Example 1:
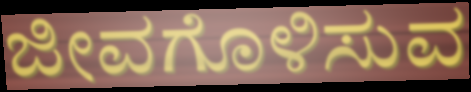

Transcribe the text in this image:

ಜೀವಗೊಳಿಸುವ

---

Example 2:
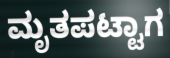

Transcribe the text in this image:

ಮೃತಪಟ್ಟಾಗ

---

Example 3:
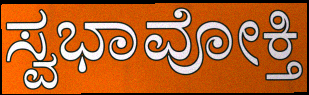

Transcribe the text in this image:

ಸ್ವಭಾವೋಕ್ತಿ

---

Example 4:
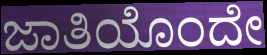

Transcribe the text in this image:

ಜಾತಿಯೊಂದೇ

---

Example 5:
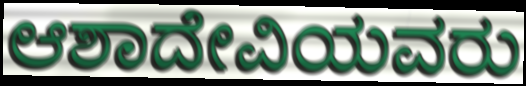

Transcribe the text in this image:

ಆಶಾದೇವಿಯವರು